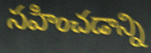
సహించడాన్ని